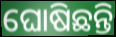
ଘୋଷିଛନ୍ତି